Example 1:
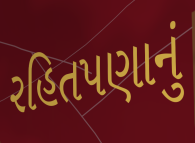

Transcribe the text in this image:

રહિતપણાનું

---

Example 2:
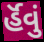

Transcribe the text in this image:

ર્હૅવું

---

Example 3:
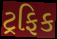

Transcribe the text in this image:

ટ્રફિક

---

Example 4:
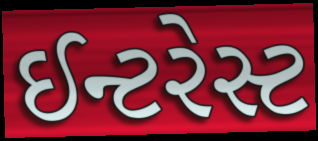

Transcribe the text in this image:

ઈન્ટરેસ્ટ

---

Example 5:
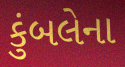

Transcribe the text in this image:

કુંબલેના